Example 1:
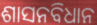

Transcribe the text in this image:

ଶାସନବିଧାନ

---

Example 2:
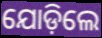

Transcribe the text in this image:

ଯୋଡ଼ିଲେ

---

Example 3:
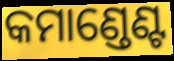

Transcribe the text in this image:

କମାଣ୍ଡେଣ୍ଟ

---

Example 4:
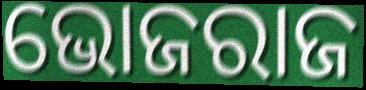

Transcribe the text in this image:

ଭୋଜରାଜ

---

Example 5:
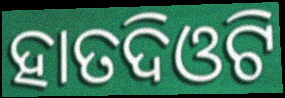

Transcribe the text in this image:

ହାତଦିଓଟି